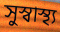
সুস্বাস্থ্য